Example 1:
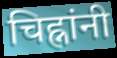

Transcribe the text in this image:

चिह्नांनी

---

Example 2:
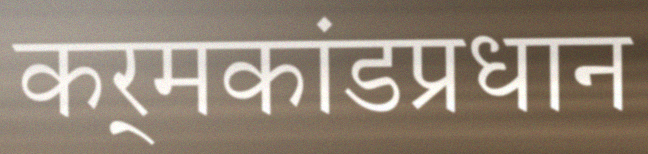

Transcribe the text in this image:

कर्मकांडप्रधान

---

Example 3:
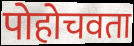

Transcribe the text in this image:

पोहोचवता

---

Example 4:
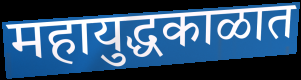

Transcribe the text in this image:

महायुद्धकाळात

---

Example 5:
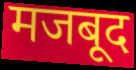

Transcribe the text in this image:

मजबूद